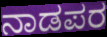
ನಾಡಪರ